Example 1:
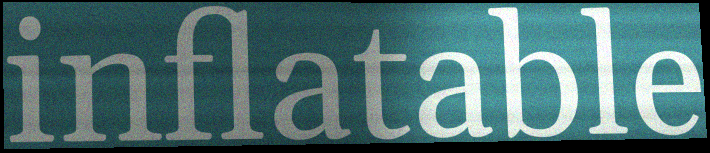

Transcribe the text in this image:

inflatable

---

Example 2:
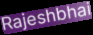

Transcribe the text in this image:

Rajeshbhai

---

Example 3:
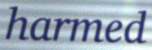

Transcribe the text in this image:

harmed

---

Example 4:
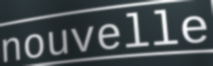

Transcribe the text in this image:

nouvelle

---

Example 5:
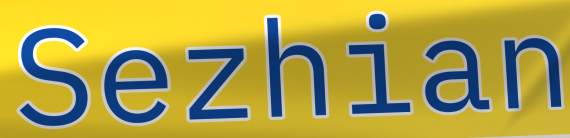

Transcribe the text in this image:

Sezhian